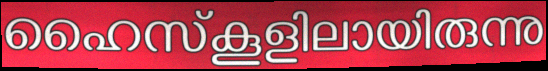
ഹൈസ്‌കൂളിലായിരുന്നു